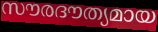
സൗരദൗത്യമായ